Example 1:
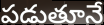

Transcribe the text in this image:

పడుతూనే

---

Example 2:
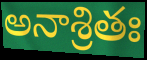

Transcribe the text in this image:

అనాశ్రితః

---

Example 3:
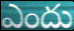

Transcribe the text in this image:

ఎందు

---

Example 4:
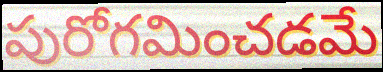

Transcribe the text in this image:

పురోగమించడమే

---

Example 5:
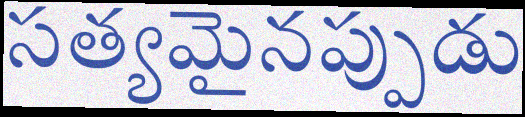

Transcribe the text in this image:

సత్యమైనప్పుడు